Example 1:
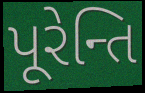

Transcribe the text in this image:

પૂરેન્તિ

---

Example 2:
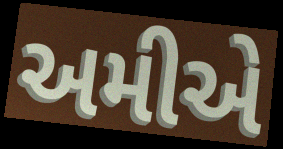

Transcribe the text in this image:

અમીએ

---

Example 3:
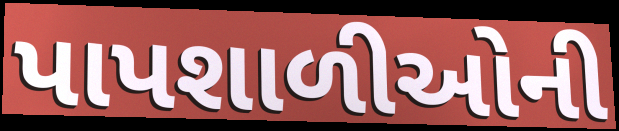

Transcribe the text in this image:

પાપશાળીઓની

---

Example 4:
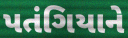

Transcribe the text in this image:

પતંગિયાને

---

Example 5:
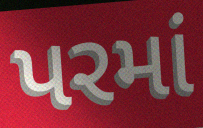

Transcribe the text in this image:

પરમાં